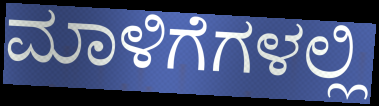
ಮಾಳಿಗೆಗಳಲ್ಲಿ